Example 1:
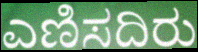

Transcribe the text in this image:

ಎಣಿಸದಿರು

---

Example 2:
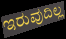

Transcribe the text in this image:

ಇರುವುದಿಲ್ಲ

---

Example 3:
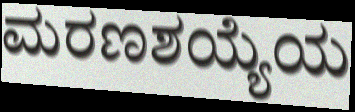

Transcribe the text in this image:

ಮರಣಶಯ್ಯೆಯ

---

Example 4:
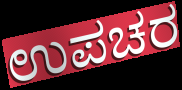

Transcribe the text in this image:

ಉಪಚರ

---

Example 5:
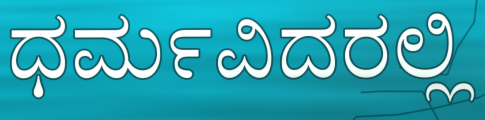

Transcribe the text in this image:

ಧರ್ಮವಿದರಲ್ಲಿ